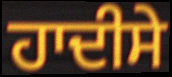
ਹਾਦੀਸੇ